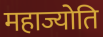
महाज्योति